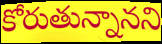
కోరుతున్నానని